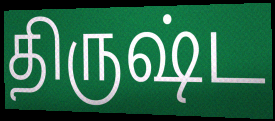
திருஷ்ட